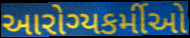
આરોગ્યકર્મીઓ